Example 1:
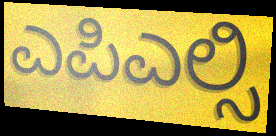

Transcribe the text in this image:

ಎಪಿಎಲ್ಸಿ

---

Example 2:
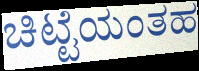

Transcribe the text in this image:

ಚಿಟ್ಟೆಯಂತಹ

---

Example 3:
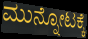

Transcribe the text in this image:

ಮುನ್ನೋಟಕ್ಕೆ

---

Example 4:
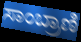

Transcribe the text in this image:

ಸಾಂಬ್ರಾಣಿ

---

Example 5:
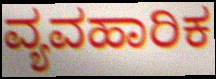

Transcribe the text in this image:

ವ್ಯವಹಾರಿಕ